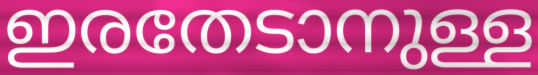
ഇരതേടാനുള്ള